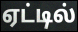
ஏட்டில்